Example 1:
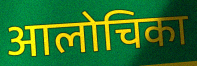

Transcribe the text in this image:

आलोचिका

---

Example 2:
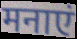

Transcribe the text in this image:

मनाएं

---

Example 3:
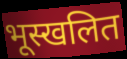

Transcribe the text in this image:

भूस्खलित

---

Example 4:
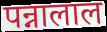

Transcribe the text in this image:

पन्नालाल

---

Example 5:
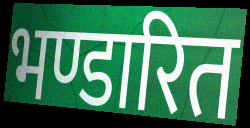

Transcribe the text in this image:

भण्डारित